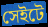
সেইটে